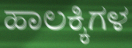
ಹಾಲಕ್ಕಿಗಳ